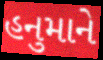
હનુમાને